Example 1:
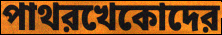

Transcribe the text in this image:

পাথরখেকোদের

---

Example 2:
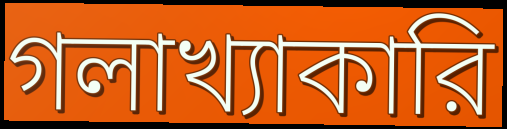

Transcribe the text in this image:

গলাখ্যাকারি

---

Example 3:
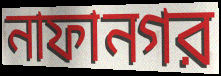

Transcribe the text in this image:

নাফানগর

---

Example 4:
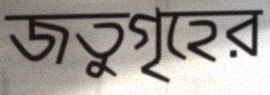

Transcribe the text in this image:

জতুগৃহের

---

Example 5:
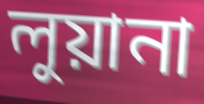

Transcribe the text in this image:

লুয়ানা